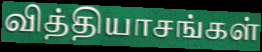
வித்தியாசங்கள்